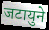
जटायुने